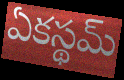
ఏకస్థమ్